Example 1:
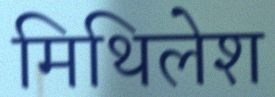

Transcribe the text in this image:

मिथिलेश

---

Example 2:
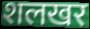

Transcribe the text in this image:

शलखर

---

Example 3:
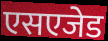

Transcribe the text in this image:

एसएजेड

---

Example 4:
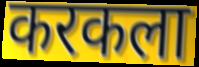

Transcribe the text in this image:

करकला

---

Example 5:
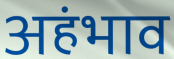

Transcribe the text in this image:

अहंभाव